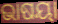
ଭାଷୟା